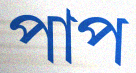
পাপ